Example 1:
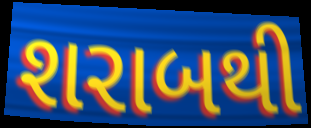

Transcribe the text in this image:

શરાબથી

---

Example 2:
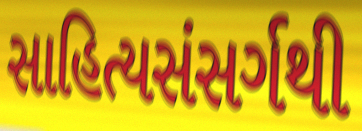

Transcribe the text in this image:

સાહિત્યસંસર્ગથી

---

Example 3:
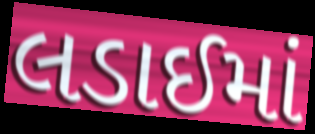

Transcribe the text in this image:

લડાઈમાં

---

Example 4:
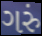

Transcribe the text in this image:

ગરું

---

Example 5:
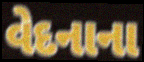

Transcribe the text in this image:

વેદનાના